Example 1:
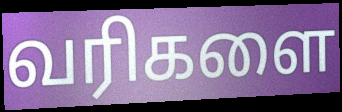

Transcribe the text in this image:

வரிகளை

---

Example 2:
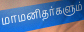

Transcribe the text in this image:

மாமனிதர்களும்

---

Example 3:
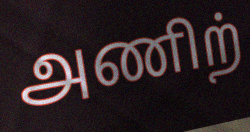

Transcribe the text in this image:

அணிற்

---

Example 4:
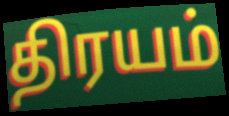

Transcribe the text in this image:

திரயம்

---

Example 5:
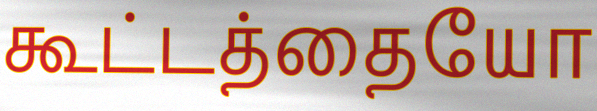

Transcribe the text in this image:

கூட்டத்தையோ